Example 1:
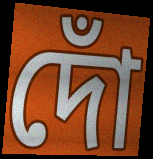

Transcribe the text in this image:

দোঁ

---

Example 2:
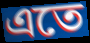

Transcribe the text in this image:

এতে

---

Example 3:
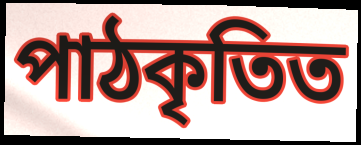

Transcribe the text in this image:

পাঠকৃতিত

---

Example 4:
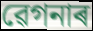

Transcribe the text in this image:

ৱেগনাৰ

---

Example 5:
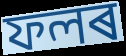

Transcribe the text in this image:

ফলৰ